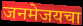
जनमेजयचा